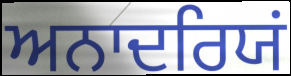
ਅਨਾਦਰਿਯਂ